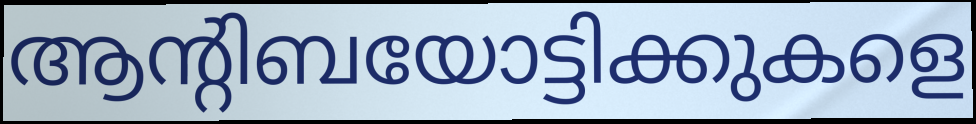
ആന്റിബയോട്ടിക്കുകളെ